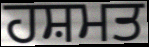
ਹਸ਼ਮਤ